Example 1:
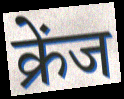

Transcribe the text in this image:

क्रेंज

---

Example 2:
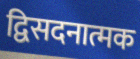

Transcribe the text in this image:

द्विसदनात्मक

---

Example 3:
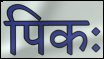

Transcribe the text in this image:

पिकः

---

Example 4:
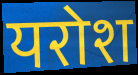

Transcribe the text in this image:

यरोश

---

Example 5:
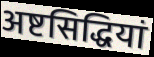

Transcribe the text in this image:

अष्टसिद्धियां